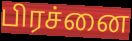
பிரச்னை